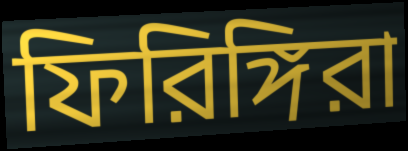
ফিরিঙ্গিরা